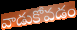
వాడుకోవడం